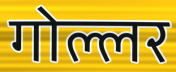
गोल्लर